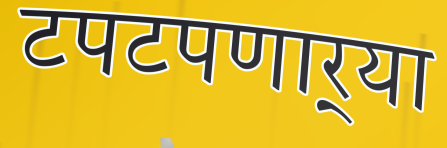
टपटपणार्या